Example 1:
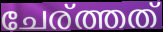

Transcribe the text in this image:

ചേര്ത്തത്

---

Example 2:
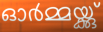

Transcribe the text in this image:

ഓർമ്മയ്ക്കു്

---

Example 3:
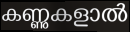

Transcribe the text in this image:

കണ്ണുകളാൽ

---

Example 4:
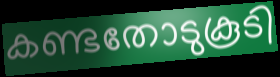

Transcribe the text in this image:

കണ്ടതോടുകൂടി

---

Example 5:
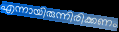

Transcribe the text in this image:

എന്നായിരുന്നിരിക്കണം